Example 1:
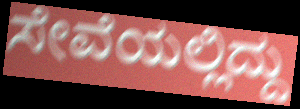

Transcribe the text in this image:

ಸೇವೆಯಲ್ಲಿದ್ದು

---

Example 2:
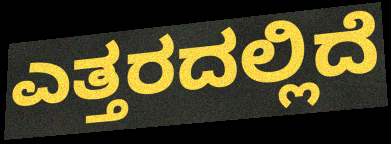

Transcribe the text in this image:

ಎತ್ತರದಲ್ಲಿದೆ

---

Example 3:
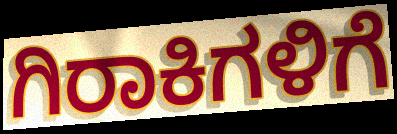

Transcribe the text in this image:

ಗಿರಾಕಿಗಳಿಗೆ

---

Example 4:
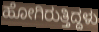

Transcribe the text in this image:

ಹೋಗಿರುತ್ತಿದ್ದಳು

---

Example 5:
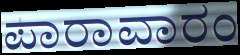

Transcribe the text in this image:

ಪಾರಾವಾರಂ